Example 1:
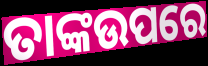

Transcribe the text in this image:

ତାଙ୍କଉପରେ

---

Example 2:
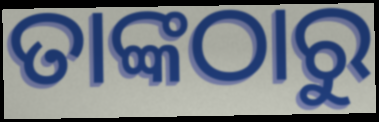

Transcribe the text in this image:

ତାଙ୍କଠାରୁ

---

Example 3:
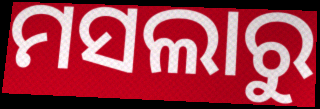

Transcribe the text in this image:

ମସଲାରୁ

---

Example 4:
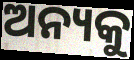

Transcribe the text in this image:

ଅନ୍ୟକୁ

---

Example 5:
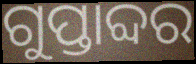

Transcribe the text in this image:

ଗୁପ୍ତାବ୍ଦର